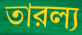
তারল্য